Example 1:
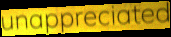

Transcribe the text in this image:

unappreciated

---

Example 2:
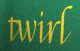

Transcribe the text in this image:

twirl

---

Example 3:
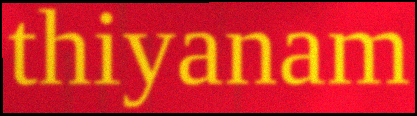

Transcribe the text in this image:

thiyanam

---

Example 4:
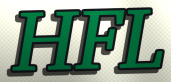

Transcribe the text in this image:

HFL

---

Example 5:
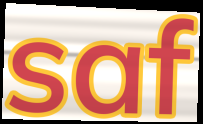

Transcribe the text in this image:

saf